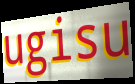
ugisu